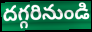
దగ్గరినుండి